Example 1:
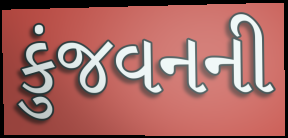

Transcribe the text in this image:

કુંજવનની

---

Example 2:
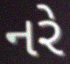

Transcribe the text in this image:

નરે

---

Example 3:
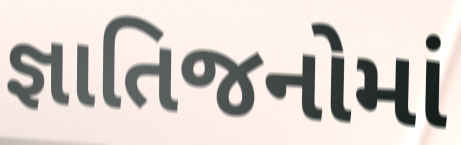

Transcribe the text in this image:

જ્ઞાતિજનોમાં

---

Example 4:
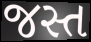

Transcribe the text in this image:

જસ્ત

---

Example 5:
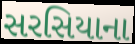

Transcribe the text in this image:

સરસિયાના